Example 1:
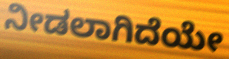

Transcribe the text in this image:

ನೀಡಲಾಗಿದೆಯೇ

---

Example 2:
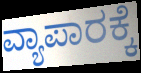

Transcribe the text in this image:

ವ್ಯಾಪಾರಕ್ಕೆ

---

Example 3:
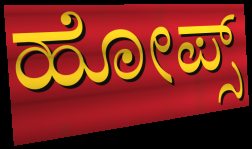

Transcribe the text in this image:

ಹೋಪ್ಸ್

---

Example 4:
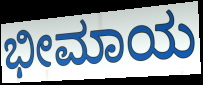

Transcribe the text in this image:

ಭೀಮಾಯ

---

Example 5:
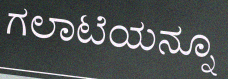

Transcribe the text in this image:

ಗಲಾಟೆಯನ್ನೂ